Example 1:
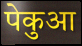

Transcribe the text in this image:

पेकुआ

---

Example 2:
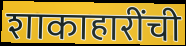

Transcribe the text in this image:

शाकाहारींची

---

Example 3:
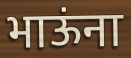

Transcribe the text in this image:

भाऊंना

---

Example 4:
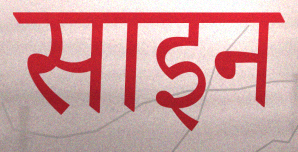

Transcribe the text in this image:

साइन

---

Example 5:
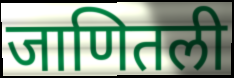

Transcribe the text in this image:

जाणितली